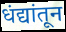
धंद्यांतून